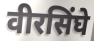
वीरसिंघे